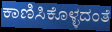
ಕಾಣಿಸಿಕೊಳ್ಳದಂತೆ